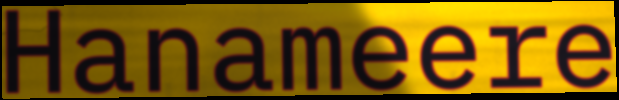
Hanameere